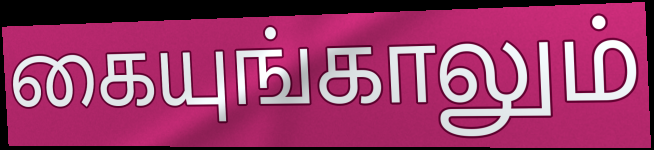
கையுங்காலும்